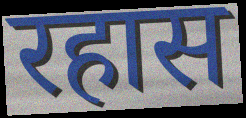
रहास